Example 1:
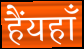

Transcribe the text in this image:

हैंयहाँ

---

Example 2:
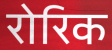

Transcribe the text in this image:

रोरिक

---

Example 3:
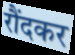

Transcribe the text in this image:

रौंदकर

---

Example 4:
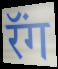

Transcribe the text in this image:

रॅंग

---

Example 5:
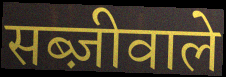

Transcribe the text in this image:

सब्ज़ीवाले